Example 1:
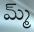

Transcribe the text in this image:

మ్మ్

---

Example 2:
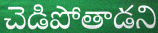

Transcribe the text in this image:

చెడిపోతాడని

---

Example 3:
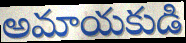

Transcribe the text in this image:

అమాయకుడి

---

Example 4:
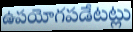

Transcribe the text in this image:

ఉపయోగపడేటట్లు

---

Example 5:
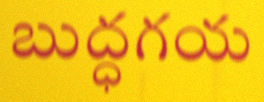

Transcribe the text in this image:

బుద్ధగయ